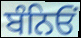
ਬੰਨਿਓਂ